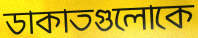
ডাকাতগুলোকে